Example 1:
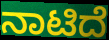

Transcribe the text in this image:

ನಾಟಿದೆ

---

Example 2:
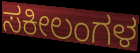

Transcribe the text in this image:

ಸಕೀಲಂಗಳ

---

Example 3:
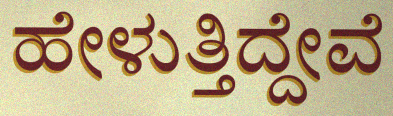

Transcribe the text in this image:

ಹೇಳುತ್ತಿದ್ದೇವೆ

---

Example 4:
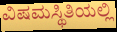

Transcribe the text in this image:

ವಿಷಮಸ್ಥಿತಿಯಲ್ಲಿ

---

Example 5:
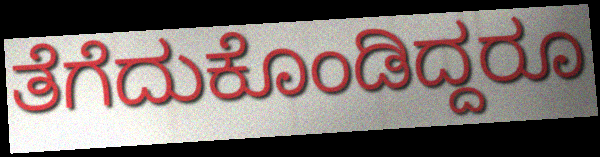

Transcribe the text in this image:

ತೆಗೆದುಕೊಂಡಿದ್ದರೂ